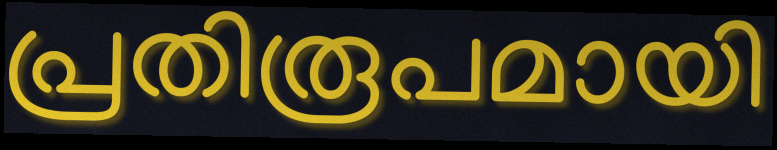
പ്രതിരൂപമായി